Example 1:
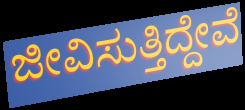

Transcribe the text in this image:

ಜೀವಿಸುತ್ತಿದ್ದೇವೆ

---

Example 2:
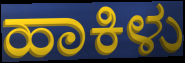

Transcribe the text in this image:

ಹಾಕಿಳು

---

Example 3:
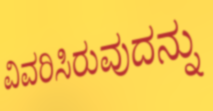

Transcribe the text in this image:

ವಿವರಿಸಿರುವುದನ್ನು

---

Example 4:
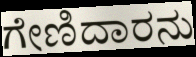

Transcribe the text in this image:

ಗೇಣಿದಾರನು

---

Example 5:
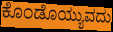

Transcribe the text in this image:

ಕೊಂಡೊಯ್ಯುವದು